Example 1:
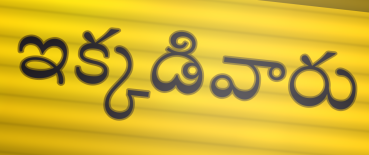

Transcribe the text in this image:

ఇక్కడివారు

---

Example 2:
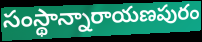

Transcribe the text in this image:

సంస్థాన్నారాయణపురం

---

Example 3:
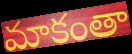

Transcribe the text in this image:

మాకంతా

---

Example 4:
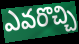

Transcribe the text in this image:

ఎవరొచ్చి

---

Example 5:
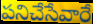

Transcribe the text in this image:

పనిచేసేవారే